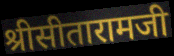
श्रीसीतारामजी